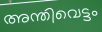
അന്തിവെട്ടം